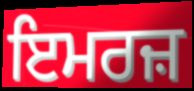
ਇਮਰਜ਼